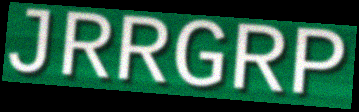
JRRGRP